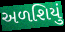
અળશિયું